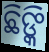
ଛିଙ୍କି